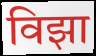
विझा